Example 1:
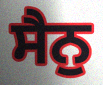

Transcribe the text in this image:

ਸੈਨੁ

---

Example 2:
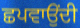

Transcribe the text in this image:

ਛਪਵਾਉਂਦੀ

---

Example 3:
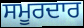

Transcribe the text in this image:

ਸਮੂਰਦਾਰ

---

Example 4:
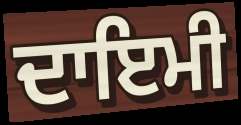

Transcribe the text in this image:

ਦਾਇਮੀ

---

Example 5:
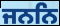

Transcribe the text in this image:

ਜਨਨਿ